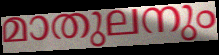
മാതുലനും